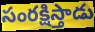
సంరక్షిస్తాడు